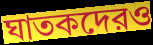
ঘাতকদেরও